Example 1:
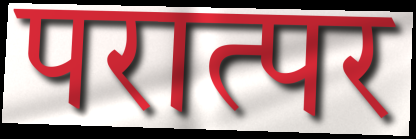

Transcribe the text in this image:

परात्पर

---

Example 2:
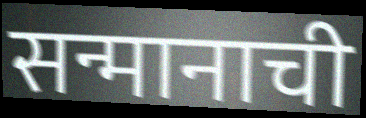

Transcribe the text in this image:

सन्मानाची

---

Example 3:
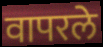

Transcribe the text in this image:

वापरले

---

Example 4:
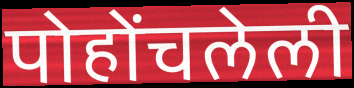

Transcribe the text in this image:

पोहोंचलेली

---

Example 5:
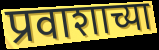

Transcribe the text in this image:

प्रवाशाच्या